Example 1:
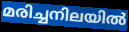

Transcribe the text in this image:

മരിച്ചനിലയിൽ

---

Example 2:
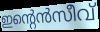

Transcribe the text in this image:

ഇന്റെൻസീവ്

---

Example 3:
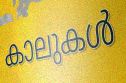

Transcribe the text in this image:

കാലുകൾ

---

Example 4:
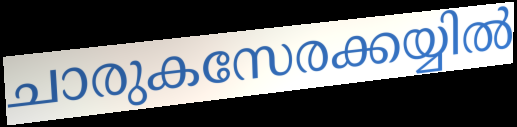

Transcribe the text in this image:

ചാരുകസേരക്കയ്യിൽ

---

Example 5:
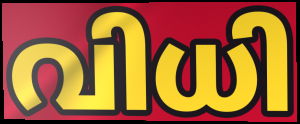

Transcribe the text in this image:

വിധി